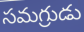
సమగ్రుడు